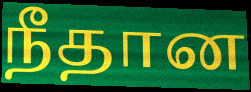
நீதான